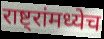
राष्ट्रांमध्येच